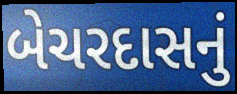
બેચરદાસનું